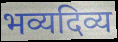
भव्यदिव्य